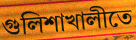
গুলিশাখালীতে